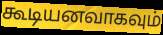
கூடியனவாகவும்